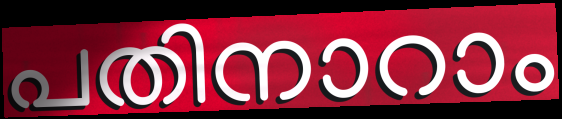
പതിനാറാം